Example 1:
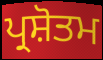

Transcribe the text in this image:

ਪ੍ਰਸ਼ੋਤਮ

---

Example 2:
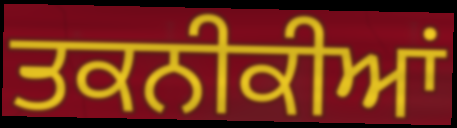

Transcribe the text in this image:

ਤਕਨੀਕੀਆਂ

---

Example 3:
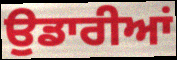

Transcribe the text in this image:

ਉੁਡਾਰੀਆਂ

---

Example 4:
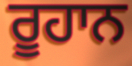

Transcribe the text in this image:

ਰੂਹਾਨ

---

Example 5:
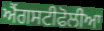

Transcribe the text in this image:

ਐਂਗਸਟੀਫੋਲੀਆ